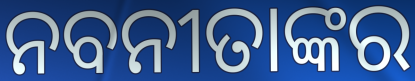
ନବନୀତାଙ୍କର